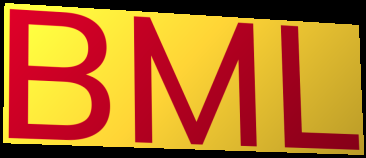
BML